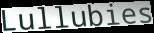
Lullubies